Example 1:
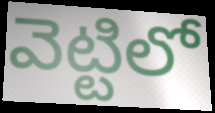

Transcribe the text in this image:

వెట్టిలో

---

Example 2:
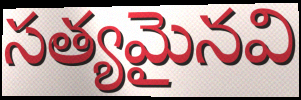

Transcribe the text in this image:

సత్యమైనవి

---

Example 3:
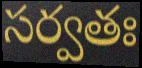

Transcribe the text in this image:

సర్వతః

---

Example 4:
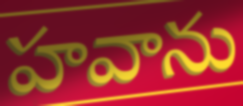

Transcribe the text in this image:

హవాను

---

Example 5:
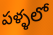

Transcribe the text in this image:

పళ్ళలో